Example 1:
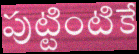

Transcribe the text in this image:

పుట్టింటికే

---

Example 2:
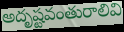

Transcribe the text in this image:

అదృష్టవంతురాలివి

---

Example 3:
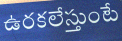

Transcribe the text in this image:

ఉరకలేస్తుంటే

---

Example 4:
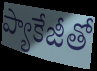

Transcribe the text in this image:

ప్యాకేజీతో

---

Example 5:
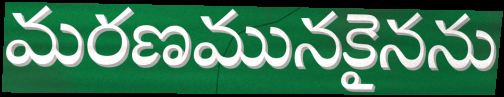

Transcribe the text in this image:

మరణమునకైనను